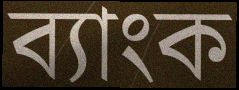
ব্যাংক